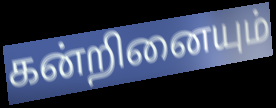
கன்றினையும்